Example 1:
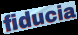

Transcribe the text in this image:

fiducia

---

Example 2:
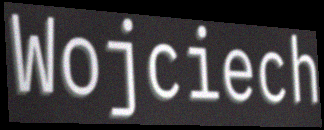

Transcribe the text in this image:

Wojciech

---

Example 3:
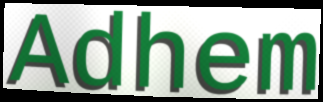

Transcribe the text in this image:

Adhem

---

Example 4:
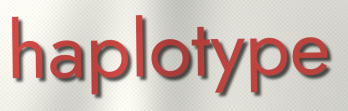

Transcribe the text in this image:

haplotype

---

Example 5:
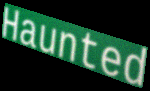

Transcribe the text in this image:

Haunted